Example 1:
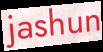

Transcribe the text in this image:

jashun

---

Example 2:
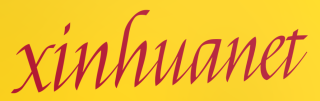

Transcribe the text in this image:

xinhuanet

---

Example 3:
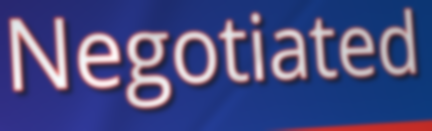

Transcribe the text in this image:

Negotiated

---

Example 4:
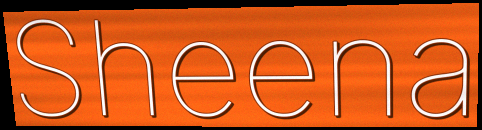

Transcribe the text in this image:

Sheena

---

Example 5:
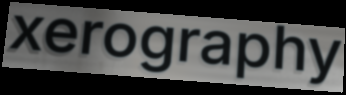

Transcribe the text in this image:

xerography